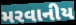
મરવાનીય